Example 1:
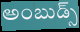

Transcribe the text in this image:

అంబుడ్స్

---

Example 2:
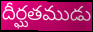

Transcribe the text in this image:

దీర్ఘతముడు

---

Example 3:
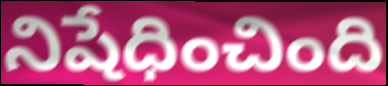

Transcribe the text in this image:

నిషేధించింది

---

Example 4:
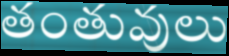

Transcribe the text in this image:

తంతువులు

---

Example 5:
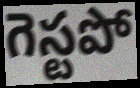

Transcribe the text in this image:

గెస్టపో